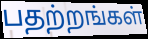
பதற்றங்கள்